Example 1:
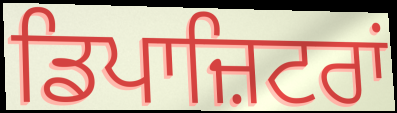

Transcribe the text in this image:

ਡਿਪਾਜ਼ਿਟਰਾਂ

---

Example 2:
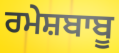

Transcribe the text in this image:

ਰਮੇਸ਼ਬਾਬੂ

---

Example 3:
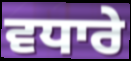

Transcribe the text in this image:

ਵਧਾਰੇ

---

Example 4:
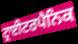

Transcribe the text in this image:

ਟ੍ਰਾਈਟਰਪੈਨਿਕ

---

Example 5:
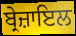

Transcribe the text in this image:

ਬ੍ਰੇਜ਼ਾਇਲ